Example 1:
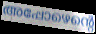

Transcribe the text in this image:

അപ്പോഴെന്റെ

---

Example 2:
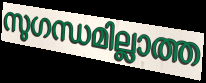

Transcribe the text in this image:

സുഗന്ധമില്ലാത്ത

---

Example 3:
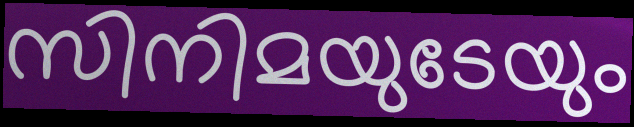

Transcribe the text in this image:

സിനിമയുടേയും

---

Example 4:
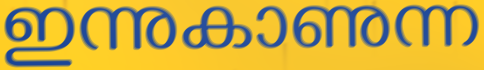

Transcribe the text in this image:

ഇന്നുകാണുന്ന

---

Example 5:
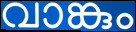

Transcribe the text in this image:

വാങ്കും